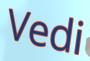
Vedi